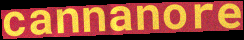
cannanore